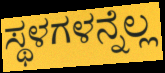
ಸ್ಥಳಗಳನ್ನೆಲ್ಲ